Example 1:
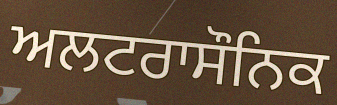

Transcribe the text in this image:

ਅਲਟਰਾਸੌਨਿਕ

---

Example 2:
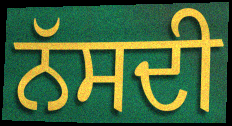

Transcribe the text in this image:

ਨੱਸਦੀ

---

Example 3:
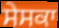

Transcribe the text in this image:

ਸੇਸਕਾ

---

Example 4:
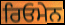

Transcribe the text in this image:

ਰਿਓਮੇਨ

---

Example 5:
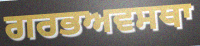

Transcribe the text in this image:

ਗਰਭਅਵਸਥਾ